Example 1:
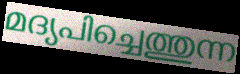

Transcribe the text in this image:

മദ്യപിച്ചെത്തുന്ന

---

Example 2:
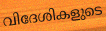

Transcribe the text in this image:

വിദേശികളുടെ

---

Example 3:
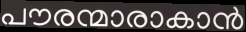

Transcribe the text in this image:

പൗരന്മാരാകാൻ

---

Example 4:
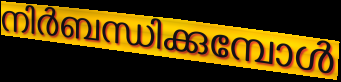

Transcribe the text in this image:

നിർബന്ധിക്കുമ്പോൾ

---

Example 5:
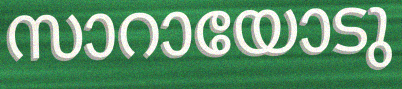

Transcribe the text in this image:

സാറായോടു